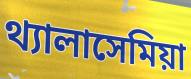
থ্যালাসেমিয়া